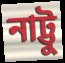
নাট্টু